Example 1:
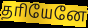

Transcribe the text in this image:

தரியேனே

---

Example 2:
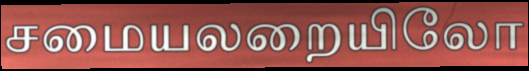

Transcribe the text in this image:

சமையலறையிலோ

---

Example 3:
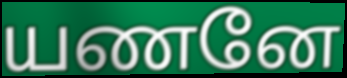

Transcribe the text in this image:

யணனே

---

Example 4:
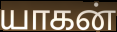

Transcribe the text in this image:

யாகன்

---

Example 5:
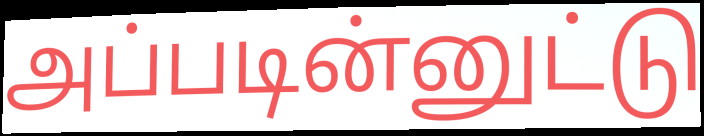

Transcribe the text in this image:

அப்படின்னுட்டு